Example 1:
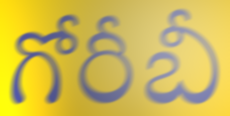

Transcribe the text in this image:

గోరీబీ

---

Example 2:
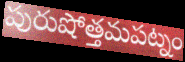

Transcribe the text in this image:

పురుషోత్తమపట్నం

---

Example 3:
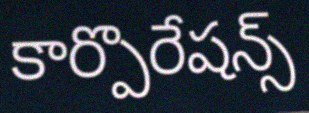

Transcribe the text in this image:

కార్పొరేషన్స్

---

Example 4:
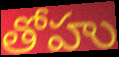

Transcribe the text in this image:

తోహు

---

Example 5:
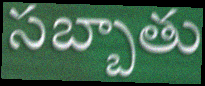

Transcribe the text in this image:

సబ్బాతు